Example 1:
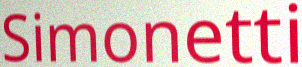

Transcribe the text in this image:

Simonetti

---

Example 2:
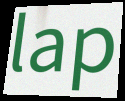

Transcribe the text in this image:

lap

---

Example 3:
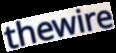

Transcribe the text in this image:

thewire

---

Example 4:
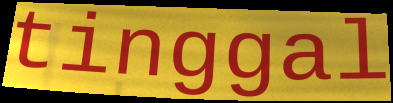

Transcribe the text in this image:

tinggal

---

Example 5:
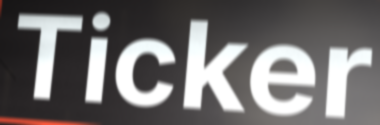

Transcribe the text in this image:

Ticker